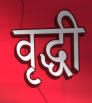
वृद्धी